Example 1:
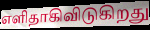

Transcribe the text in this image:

எளிதாகிவிடுகிறது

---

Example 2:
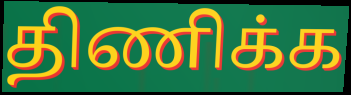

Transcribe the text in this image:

திணிக்க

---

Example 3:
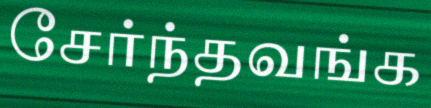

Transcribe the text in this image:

சேர்ந்தவங்க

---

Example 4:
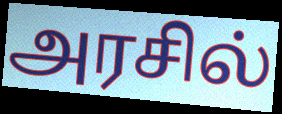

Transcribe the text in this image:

அரசில்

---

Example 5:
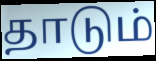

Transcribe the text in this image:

தாடும்